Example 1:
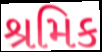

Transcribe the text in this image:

શ્રમિક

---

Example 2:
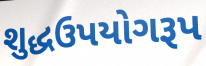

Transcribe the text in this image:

શુદ્ધઉપયોગરૂપ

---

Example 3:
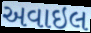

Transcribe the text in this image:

અવાઇલ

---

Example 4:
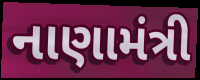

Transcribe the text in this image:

નાણામંત્રી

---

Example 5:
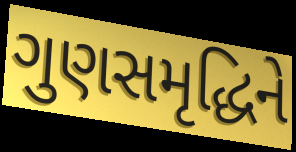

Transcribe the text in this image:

ગુણસમૃદ્ધિને